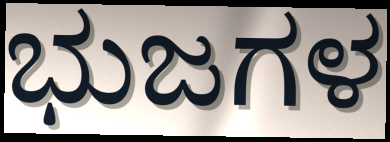
ಭುಜಗಳ